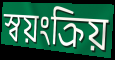
স্বয়ংক্রিয়